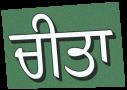
ਚੀਤਾ